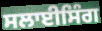
ਸਲਾਈਸਿੰਗ